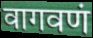
वागवणं